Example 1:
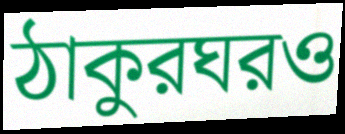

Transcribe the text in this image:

ঠাকুরঘরও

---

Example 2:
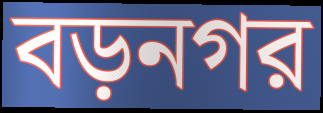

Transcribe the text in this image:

বড়নগর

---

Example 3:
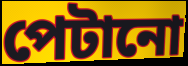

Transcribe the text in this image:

পেটানো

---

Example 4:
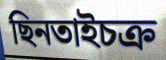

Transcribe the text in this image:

ছিনতাইচক্র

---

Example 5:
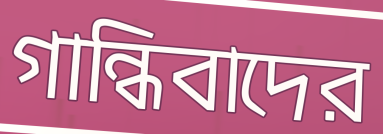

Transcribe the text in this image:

গান্ধিবাদের